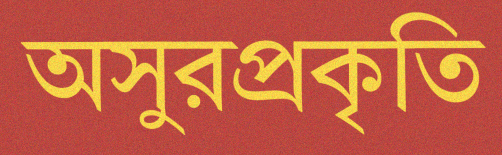
অসুরপ্রকৃতি